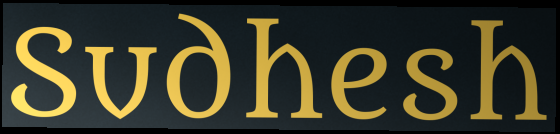
Sudhesh